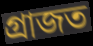
গ্ৰাজত